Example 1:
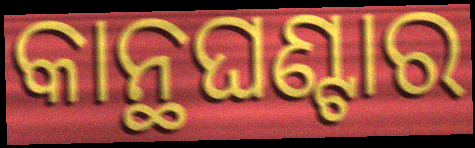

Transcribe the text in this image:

କାନ୍ଥଘଣ୍ଟାର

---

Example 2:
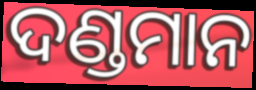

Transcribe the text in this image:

ଦଣ୍ଡମାନ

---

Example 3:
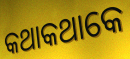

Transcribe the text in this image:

କଥାକଥାକେ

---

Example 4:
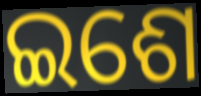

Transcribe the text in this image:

ଇଶେ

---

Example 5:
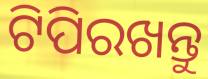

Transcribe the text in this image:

ଟିପିରଖନ୍ତୁ